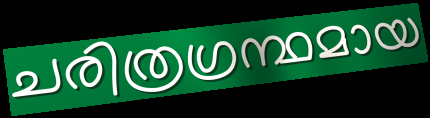
ചരിത്രഗ്രന്ഥമായ